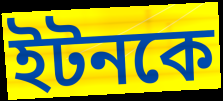
ইটনকে